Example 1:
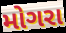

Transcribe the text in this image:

મોગરા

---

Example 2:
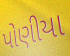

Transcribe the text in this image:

પોણીયા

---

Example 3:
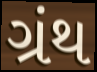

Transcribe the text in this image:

ગ્રંથ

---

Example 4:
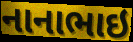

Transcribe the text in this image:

નાનાભાઇ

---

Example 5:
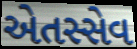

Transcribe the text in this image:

એતસ્સેવ